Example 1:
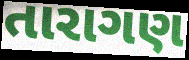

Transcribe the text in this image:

તારાગણ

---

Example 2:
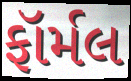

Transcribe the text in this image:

ફૉર્મલ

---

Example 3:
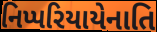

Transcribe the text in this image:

નિપ્પરિયાયેનાતિ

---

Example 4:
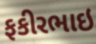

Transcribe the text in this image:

ફકીરભાઇ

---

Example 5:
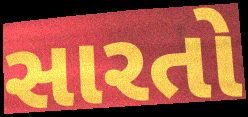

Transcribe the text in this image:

સારતો